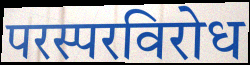
परस्परविरोध